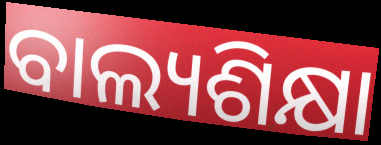
ବାଲ୍ୟଶିକ୍ଷା